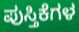
ಪುಸ್ತಿಕೆಗಳ